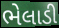
ભેલાડી